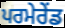
ਪਰਮੇਰੇਂਡ